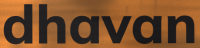
dhavan